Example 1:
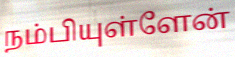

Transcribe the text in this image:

நம்பியுள்ளேன்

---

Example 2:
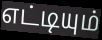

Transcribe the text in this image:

எட்டியும்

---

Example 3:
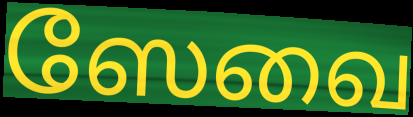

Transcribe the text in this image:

ஸேவை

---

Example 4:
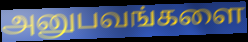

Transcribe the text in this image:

அனுபவங்களை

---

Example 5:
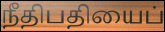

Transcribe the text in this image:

நீதிபதியைப்